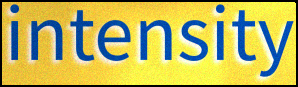
intensity